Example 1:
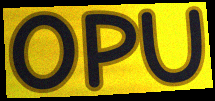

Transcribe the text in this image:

OPU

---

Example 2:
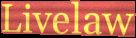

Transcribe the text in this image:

Livelaw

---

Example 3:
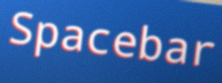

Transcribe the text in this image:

Spacebar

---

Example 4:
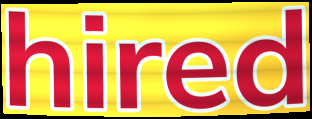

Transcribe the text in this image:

hired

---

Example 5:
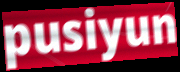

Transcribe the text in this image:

pusiyun